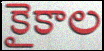
కైకాల